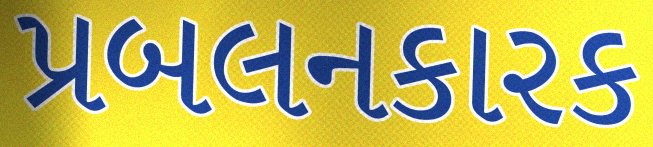
પ્રબલનકારક